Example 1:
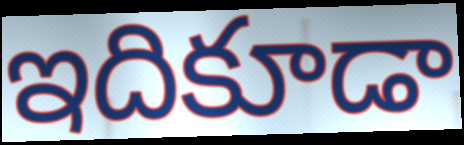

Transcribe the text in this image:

ఇదికూడా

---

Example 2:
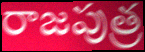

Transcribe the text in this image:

రాజపుత్ర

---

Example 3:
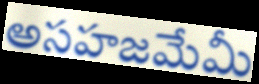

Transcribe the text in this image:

అసహజమేమీ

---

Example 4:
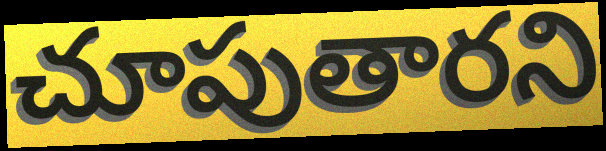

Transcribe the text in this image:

చూపుతారని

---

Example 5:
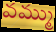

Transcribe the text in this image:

వమ్ము